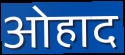
ओहाद